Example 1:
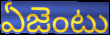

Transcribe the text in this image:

ఏజెంటు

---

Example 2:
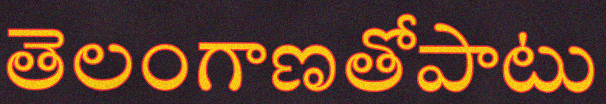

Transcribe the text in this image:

తెలంగాణతోపాటు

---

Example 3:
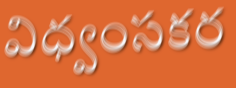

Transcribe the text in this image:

విధ్వంసకర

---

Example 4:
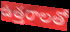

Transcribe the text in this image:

ఉత్తరాలతో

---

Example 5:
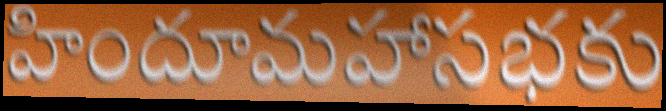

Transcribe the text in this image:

హిందూమహాసభకు